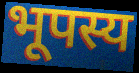
भूपस्य